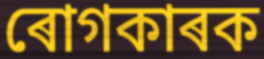
ৰোগকাৰক